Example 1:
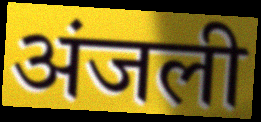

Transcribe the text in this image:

अंजली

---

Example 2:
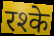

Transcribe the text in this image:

रश्के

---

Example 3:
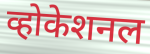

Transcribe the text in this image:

व्होकेशनल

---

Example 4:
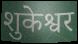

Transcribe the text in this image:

शुकेश्वर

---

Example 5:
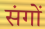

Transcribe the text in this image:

संगों